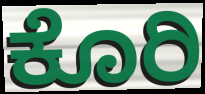
ಕೊರಿ